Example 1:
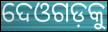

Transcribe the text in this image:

ଦେଓଗଡ଼କୁ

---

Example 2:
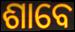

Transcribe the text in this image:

ଶାବେ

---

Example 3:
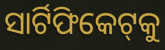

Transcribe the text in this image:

ସାର୍ଟିଫିକେଟ୍‌କୁ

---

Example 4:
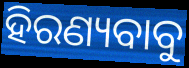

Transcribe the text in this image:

ହିରଣ୍ୟବାବୁ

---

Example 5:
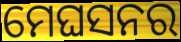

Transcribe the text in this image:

ମେଘସନର